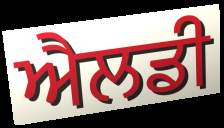
ਐਲਡੀ